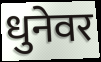
धुनेवर